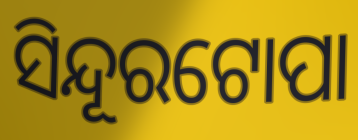
ସିନ୍ଦୂରଟୋପା